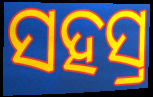
ସହସ୍ର